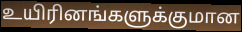
உயிரினங்களுக்குமான